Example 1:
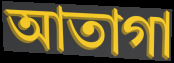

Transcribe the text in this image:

আতাগা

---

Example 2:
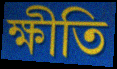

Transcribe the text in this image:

ক্ষীতি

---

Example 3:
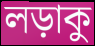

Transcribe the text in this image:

লড়াকু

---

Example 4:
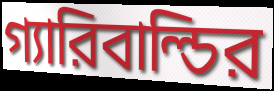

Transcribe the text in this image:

গ্যারিবাল্ডির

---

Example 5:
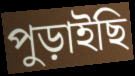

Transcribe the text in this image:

পুড়াইছি